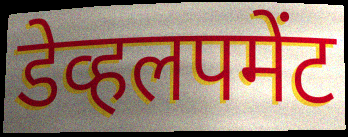
डेव्हलपमेंट